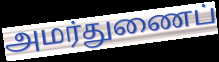
அமர்துணைப்